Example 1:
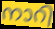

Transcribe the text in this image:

നാറി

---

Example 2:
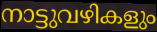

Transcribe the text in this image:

നാട്ടുവഴികളും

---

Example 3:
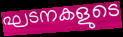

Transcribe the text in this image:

ഘടനകളുടെ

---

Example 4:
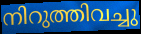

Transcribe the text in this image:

നിറുത്തിവച്ചു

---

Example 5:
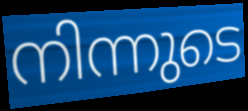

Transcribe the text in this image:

നിന്നുടെ